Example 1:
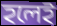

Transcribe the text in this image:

হলেই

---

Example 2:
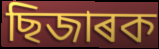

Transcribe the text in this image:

ছিজাৰক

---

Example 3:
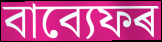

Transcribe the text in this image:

বাব্যেফৰ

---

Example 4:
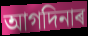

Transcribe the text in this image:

আগদিনাৰ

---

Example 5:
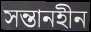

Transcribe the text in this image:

সন্তানহীন